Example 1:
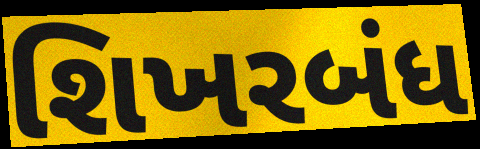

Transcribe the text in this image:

શિખરબંધ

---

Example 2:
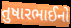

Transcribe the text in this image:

તુષારભાઈનો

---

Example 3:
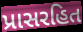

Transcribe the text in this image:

પ્રાસરહિત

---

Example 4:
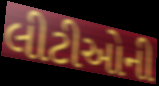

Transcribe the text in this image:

લીટીઓની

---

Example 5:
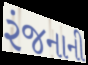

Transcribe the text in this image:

રંજનાની